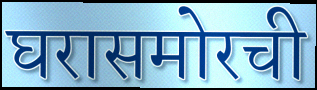
घरासमोरची